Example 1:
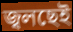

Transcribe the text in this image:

জ্বলছেই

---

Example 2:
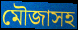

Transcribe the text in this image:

মৌজাসহ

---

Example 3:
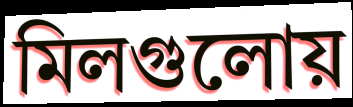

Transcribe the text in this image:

মিলগুলোয়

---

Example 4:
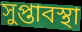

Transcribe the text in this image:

সুপ্তাবস্থা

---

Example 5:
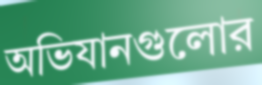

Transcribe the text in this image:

অভিযানগুলোর